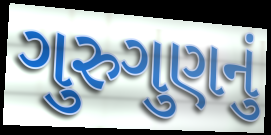
ગુરુગુણનું